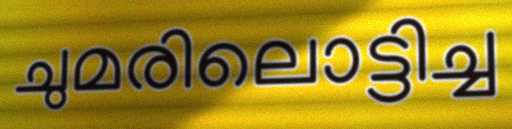
ചുമരിലൊട്ടിച്ച